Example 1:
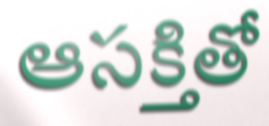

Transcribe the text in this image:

ఆసక్తితో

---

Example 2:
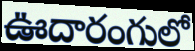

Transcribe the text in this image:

ఊదారంగులో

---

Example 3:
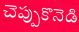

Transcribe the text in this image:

చెప్పుకొనెడి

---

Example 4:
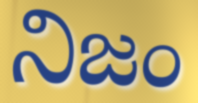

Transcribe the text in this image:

నిజం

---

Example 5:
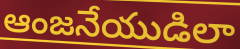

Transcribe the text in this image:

ఆంజనేయుడిలా